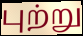
புற்று